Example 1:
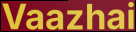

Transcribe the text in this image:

Vaazhai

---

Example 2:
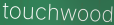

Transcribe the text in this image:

touchwood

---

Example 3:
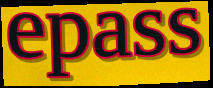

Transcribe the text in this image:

epass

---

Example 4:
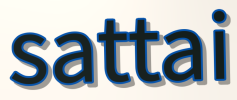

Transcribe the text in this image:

sattai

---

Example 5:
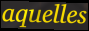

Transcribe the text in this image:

aquelles